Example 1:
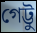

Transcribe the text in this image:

গেট্টু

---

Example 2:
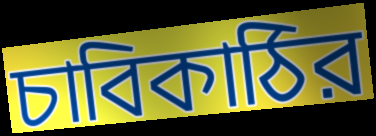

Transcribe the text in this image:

চাবিকাঠির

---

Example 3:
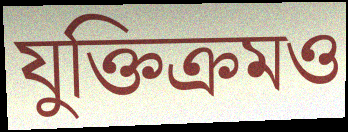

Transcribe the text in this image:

যুক্তিক্রমও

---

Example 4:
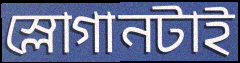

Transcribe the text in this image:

স্লোগানটাই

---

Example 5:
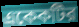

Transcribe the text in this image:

একেকটির